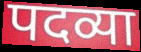
पदव्या